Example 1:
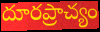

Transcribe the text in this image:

దూరప్రాచ్యం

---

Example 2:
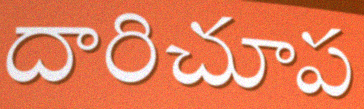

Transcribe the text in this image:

దారిచూప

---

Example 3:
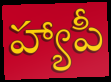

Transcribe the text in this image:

హ్యాపీ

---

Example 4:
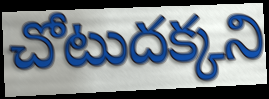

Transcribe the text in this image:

చోటుదక్కని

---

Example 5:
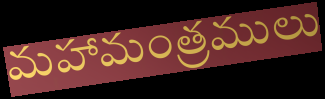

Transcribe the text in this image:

మహామంత్రములు